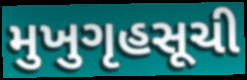
મુખુગૃહસૂચી